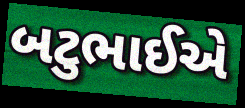
બટુભાઈએ